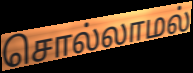
சொல்லாமல்